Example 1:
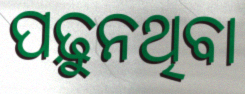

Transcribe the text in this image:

ପଢ଼ୁନଥିବା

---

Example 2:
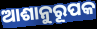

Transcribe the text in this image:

ଆଶାନୁରୂପକ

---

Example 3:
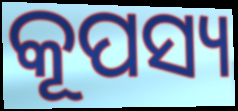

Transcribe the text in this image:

କୂପସ୍ୟ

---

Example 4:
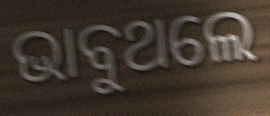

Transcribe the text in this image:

ଭାବୁଥଲେ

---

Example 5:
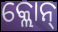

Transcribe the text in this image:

କ୍ଲୋନ୍